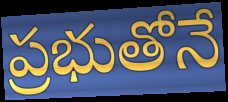
ప్రభుతోనే